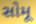
સોમૂ